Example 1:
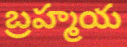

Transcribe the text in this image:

బ్రహ్మయ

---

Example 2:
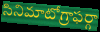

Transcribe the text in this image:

సినిమాటోగ్రాఫర్గా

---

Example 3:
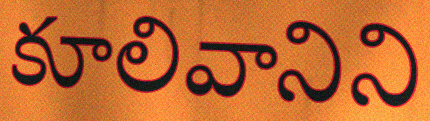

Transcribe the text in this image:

కూలివానిని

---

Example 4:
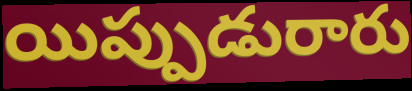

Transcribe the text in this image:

యిప్పుడురారు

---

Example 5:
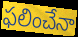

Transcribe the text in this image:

ఫలించేనా